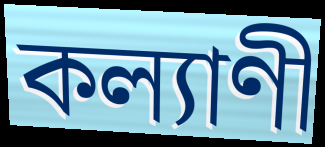
কল্যাণী